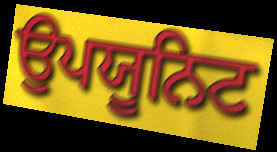
ਉਪਯੂਨਿਟ